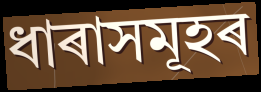
ধাৰাসমূহৰ